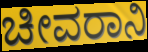
ಚೀವರಾನಿ